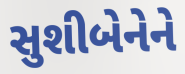
સુશીબેનેને